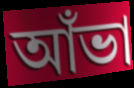
আঁভা